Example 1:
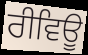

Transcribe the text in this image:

ਰੀਵਿਊ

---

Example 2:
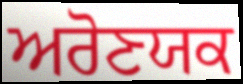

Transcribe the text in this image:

ਅਰੋਣਯਕ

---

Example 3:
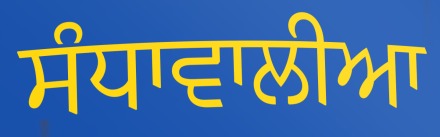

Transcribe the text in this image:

ਸੰਧਾਵਾਲੀਆ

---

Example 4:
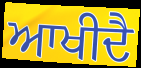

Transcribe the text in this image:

ਆਖੀਦੈ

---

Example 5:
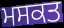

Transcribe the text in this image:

ਮਸਕਤ